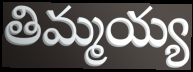
తిమ్మయ్య